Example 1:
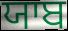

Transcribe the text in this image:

ਯਾਬ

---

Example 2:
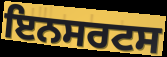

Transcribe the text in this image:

ਇਨਸਰਟਸ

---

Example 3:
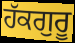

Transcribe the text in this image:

ਹੱਕਗੁਰੂ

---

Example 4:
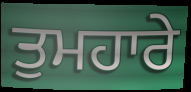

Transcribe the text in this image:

ਤੁਮਹਾਰੇ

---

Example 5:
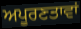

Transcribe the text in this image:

ਅਪੂਰਣਤਾਵਾਂ